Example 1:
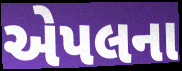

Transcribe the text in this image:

એપલના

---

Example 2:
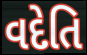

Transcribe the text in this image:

વદેતિ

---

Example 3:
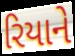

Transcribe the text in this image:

રિયાને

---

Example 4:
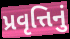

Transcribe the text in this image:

પ્રવૃત્તિનું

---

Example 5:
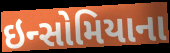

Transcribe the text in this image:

ઇન્સોમિયાના